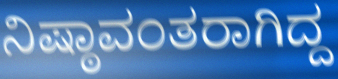
ನಿಷ್ಠಾವಂತರಾಗಿದ್ದ